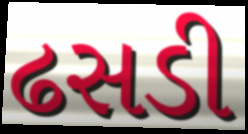
ઢસડી